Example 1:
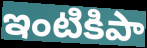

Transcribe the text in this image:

ఇంటికిపా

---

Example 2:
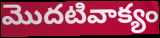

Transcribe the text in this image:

మొదటివాక్యం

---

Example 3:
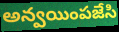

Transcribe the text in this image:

అన్వయింపజేసి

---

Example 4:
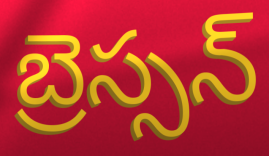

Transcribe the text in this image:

బ్రెస్సన్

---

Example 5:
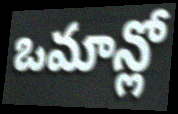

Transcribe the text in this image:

ఒమాన్లో